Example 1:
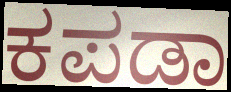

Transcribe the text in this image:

ಕಪಡಾ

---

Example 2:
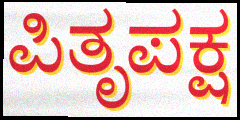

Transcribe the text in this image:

ಪಿತೃಪಕ್ಷ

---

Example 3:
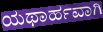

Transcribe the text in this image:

ಯಥಾರ್ಹವಾಗಿ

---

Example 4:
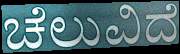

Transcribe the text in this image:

ಚೆಲುವಿದೆ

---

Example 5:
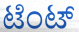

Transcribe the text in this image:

ಟೆಂಟ್